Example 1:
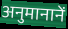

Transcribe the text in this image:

अनुमानानें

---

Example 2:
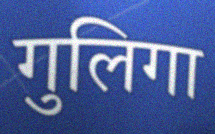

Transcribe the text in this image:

गुलिगा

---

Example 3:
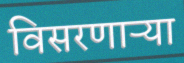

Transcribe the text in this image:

विसरणाऱ्या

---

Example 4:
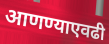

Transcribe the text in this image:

आणण्याएवढी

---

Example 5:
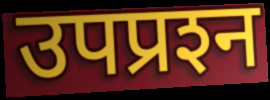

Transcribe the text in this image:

उपप्रश्‍न